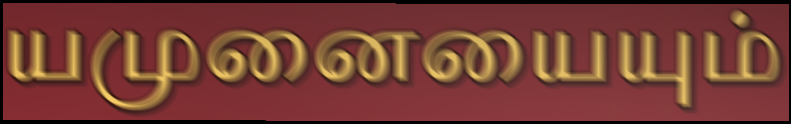
யமுனையையும்